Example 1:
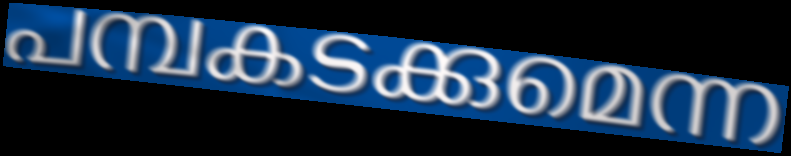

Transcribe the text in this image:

പമ്പകടക്കുമെന്ന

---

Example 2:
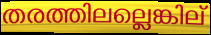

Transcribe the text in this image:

തരത്തിലല്ലെങ്കില്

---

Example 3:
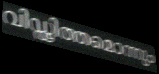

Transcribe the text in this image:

വിഡ്ഢിത്തമൊന്നും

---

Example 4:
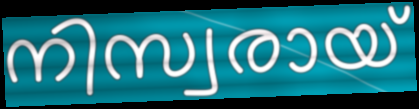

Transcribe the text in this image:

നിസ്വരായ്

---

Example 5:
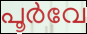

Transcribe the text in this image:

പൂർവേ